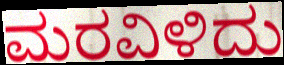
ಮರವಿಳಿದು